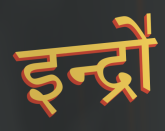
इन्द्रो॑